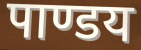
पाण्डय